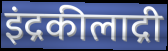
इंद्रकीलाद्री